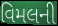
વિમલની